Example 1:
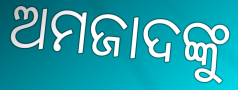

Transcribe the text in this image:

ଅମଜାଦଙ୍କୁ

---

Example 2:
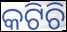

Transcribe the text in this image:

କଟିଚି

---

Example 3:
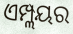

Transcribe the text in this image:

ଏମ୍ପ୍ଲୟର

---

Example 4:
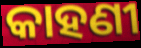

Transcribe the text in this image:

କାହଣୀ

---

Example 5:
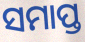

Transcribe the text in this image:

ସମାପ୍ତ